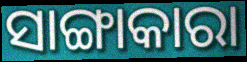
ସାଙ୍ଗାକାରା